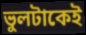
ভুলটাকেই